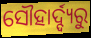
ସୌହାର୍ଦ୍ଦ୍ୟରୁ